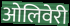
ओलिवेरी